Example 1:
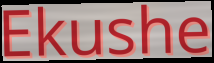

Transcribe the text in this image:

Ekushe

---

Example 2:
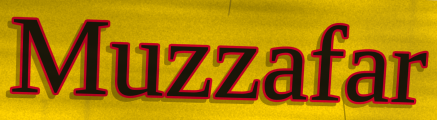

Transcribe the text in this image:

Muzzafar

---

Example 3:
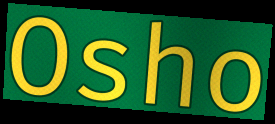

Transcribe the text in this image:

Osho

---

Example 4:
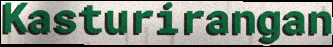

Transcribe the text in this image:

Kasturirangan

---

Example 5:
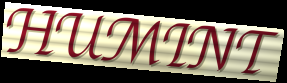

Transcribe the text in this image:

HUMINT